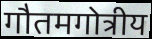
गौतमगोत्रीय